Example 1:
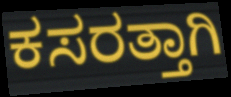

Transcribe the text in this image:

ಕಸರತ್ತಾಗಿ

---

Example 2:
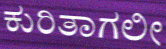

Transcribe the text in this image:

ಕುರಿತಾಗಲೀ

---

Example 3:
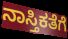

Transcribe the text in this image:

ನಾಸ್ತಿಕತೆಗೆ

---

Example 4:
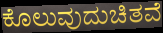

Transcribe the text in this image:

ಕೊಲುವುದುಚಿತವೆ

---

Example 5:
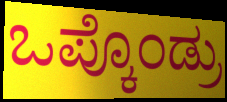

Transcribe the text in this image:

ಒಪ್ಕೊಂಡ್ರು